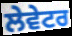
ਲੇਵੇਟਰ